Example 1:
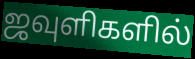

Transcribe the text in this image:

ஜவுளிகளில்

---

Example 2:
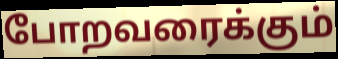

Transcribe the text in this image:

போறவரைக்கும்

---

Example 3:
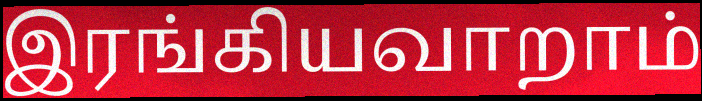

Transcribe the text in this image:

இரங்கியவாறாம்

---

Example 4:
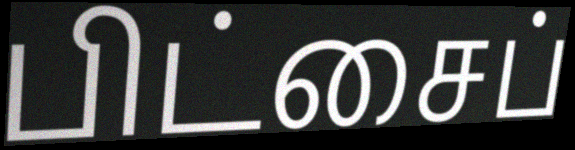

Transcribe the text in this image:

பிட்சைப்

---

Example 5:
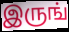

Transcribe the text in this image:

இருங்